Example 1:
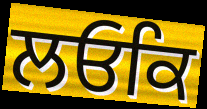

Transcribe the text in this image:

ਲਓਕਿ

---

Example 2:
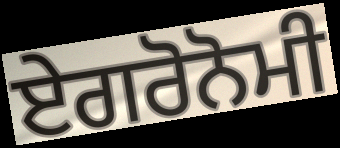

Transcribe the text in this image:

ਏਗਰੋਨੋਮੀ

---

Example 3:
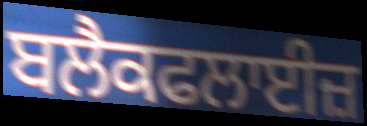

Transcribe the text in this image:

ਬਲੈਕਫਲਾਈਜ਼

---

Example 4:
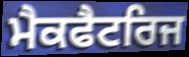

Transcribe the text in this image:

ਮੈਕਫੈਟਰਿਜ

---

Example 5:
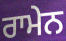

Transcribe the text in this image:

ਰਾਮੇਨ